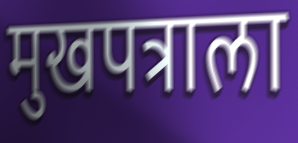
मुखपत्राला